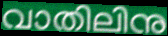
വാതിലിനു